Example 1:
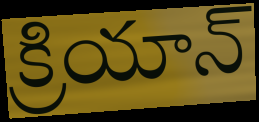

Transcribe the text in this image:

క్రియాన్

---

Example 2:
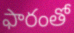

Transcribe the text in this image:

ఫారంతో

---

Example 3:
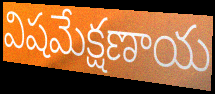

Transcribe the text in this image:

విషమేక్షణాయ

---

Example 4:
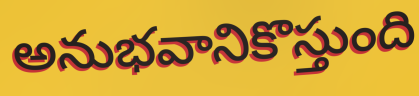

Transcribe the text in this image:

అనుభవానికొస్తుంది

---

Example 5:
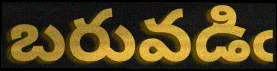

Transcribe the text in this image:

బరువడిఁ